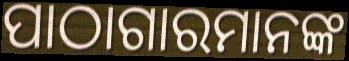
ପାଠାଗାରମାନଙ୍କ